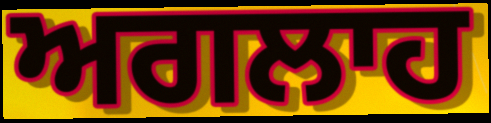
ਅਗਲਾਹ